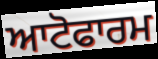
ਆਟੋਫਾਰਮ